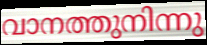
വാനത്തുനിന്നു